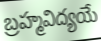
బ్రహ్మవిద్యయే